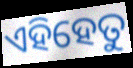
ଏହିହେତୁ